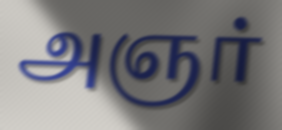
அஞர்